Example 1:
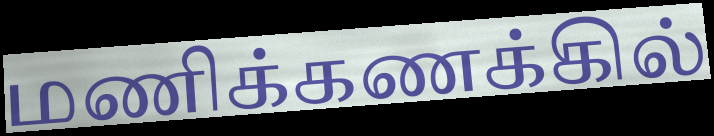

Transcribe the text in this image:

மணிக்கணக்கில்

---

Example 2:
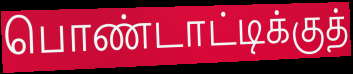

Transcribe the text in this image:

பொண்டாட்டிக்குத்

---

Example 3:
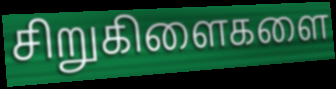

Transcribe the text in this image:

சிறுகிளைகளை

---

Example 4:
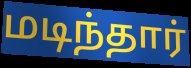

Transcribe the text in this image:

மடிந்தார்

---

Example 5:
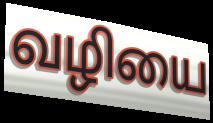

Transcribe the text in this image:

வழியை